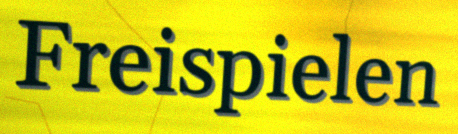
Freispielen